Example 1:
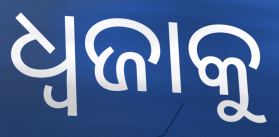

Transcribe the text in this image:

ଧ୍ୱଜାକୁ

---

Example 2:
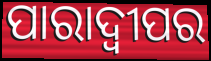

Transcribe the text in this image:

ପାରାଦ୍ବୀପର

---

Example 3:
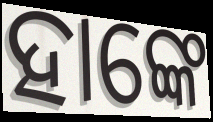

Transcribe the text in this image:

ହାଙ୍କେ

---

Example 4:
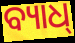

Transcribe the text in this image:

ବ୍ୟାଧ୍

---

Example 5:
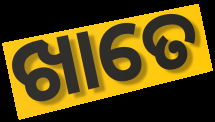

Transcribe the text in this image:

ଖାତେ